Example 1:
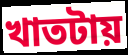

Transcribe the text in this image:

খাতটায়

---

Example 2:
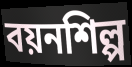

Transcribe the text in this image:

বয়নশিল্প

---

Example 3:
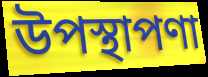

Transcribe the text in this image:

উপস্থাপণা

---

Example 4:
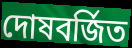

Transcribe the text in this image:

দোষবর্জিত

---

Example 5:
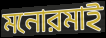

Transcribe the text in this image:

মনোরমাই